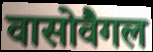
वासोवैगल